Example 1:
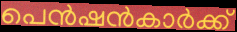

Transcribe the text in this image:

പെൻഷൻകാർക്ക്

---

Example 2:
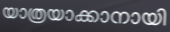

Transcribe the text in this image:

യാത്രയാക്കാനായി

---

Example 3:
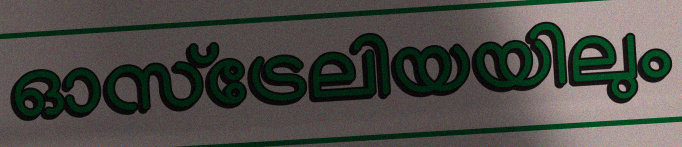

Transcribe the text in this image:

ഓസ്ട്രേലിയയിലും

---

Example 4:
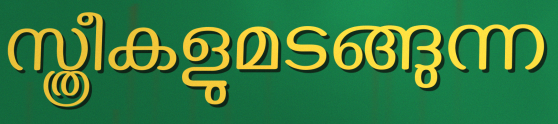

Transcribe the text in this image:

സ്ത്രീകളുമടങ്ങുന്ന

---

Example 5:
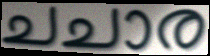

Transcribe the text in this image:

ചചാര